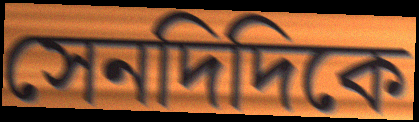
সেনদিদিকে